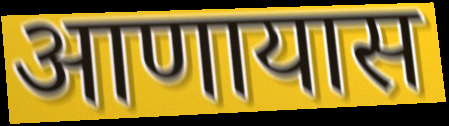
आणायास